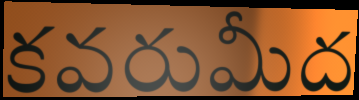
కవరుమీద